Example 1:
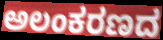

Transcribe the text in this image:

ಅಲಂಕರಣದ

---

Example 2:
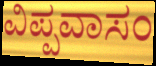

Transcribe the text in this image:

ವಿಪ್ಪವಾಸಂ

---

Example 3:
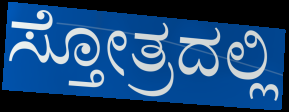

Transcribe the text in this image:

ಸ್ತೋತ್ರದಲ್ಲಿ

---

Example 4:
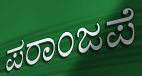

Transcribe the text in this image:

ಪರಾಂಜಪೆ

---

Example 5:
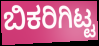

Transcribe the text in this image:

ಬಿಕರಿಗಿಟ್ಟ